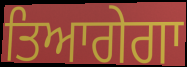
ਤਿਆਗੇਗਾ